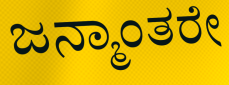
ಜನ್ಮಾಂತರೇ